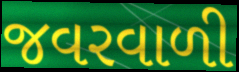
જવરવાળી